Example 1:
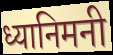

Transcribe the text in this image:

ध्यानिमनी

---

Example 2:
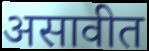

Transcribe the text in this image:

असावीत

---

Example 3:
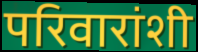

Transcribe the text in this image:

परिवारांशी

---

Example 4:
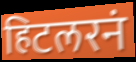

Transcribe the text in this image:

हिटलरनं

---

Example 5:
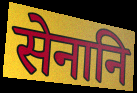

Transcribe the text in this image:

सेनानि